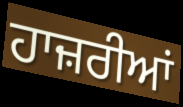
ਹਾਜ਼ਰੀਆਂ